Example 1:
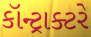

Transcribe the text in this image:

કૉન્ટ્રાક્ટરે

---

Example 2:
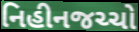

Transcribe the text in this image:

નિહીનજચ્ચો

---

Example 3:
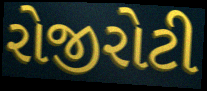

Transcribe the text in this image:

રોજીરોટી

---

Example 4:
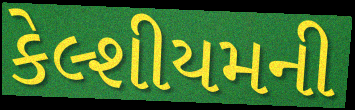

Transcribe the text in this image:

કેલ્શીયમની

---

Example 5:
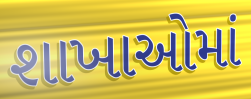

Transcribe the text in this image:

શાખાઓમાં